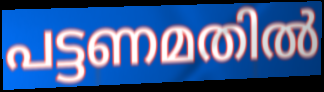
പട്ടണമതിൽ